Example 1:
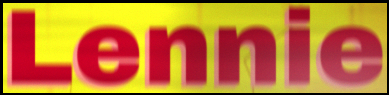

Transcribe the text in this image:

Lennie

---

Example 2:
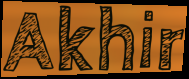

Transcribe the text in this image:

Akhir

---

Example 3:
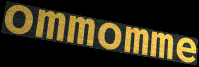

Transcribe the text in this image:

ommomme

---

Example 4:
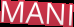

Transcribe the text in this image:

MANI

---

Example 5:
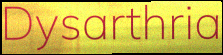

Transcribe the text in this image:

Dysarthria